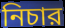
নিচার